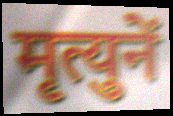
मृत्युनें